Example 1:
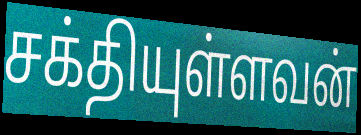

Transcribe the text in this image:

சக்தியுள்ளவன்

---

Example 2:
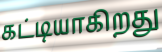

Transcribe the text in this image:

கட்டியாகிறது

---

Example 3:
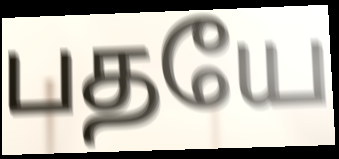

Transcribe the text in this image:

பதயே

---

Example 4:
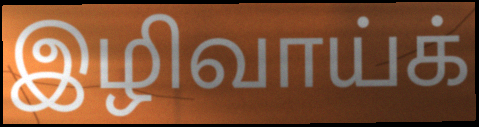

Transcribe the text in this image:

இழிவாய்க்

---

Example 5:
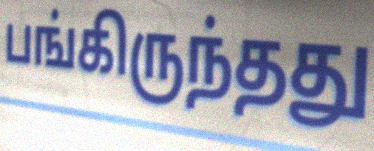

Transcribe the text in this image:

பங்கிருந்தது